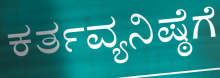
ಕರ್ತವ್ಯನಿಷ್ಠೆಗೆ